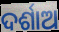
ଦର୍ଶାଅ